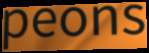
peons